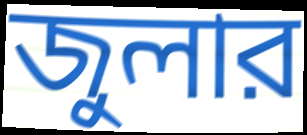
জুলার